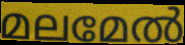
മലമേൽ